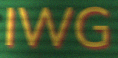
IWG